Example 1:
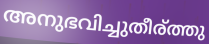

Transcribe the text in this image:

അനുഭവിച്ചുതീര്ത്തു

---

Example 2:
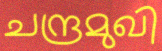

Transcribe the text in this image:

ചന്ദ്രമുഖി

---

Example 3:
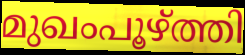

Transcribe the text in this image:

മുഖംപൂഴ്ത്തി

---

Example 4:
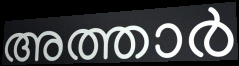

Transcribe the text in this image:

അത്താർ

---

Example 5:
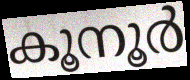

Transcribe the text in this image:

കൂനൂർ